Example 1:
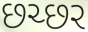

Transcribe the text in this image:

છચ્છર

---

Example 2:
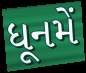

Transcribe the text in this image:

ધૂનમેં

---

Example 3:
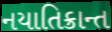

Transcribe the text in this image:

નયાતિક્રાન્ત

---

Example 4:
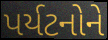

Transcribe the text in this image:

પર્યટનોને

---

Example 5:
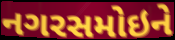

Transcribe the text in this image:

નગરસમોઇને